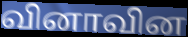
வினாவின